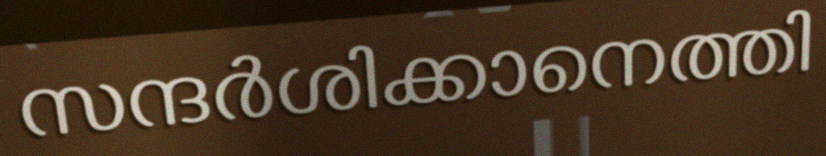
സന്ദർശിക്കാനെത്തി